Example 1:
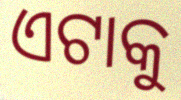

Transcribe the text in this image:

ଏଟାକୁ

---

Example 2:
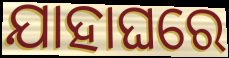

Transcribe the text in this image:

ଯାହାଘରେ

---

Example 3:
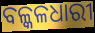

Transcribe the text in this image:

ବଳ୍କଳଧାରୀ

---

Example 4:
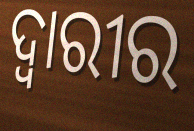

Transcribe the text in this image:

ଦ୍ୱାରୀର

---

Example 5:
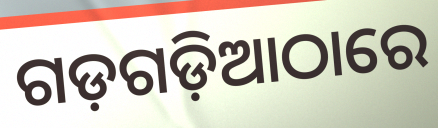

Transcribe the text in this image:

ଗଡ଼ଗଡ଼ିଆଠାରେ